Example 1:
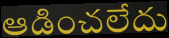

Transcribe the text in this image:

ఆడించలేదు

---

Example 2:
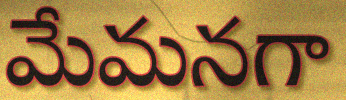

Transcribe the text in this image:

మేమనగా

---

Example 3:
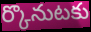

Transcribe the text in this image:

ర్కొనుటకు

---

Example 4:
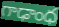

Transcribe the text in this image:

గాఢాంధ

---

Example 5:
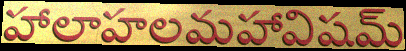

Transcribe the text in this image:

హాలాహలమహావిషమ్